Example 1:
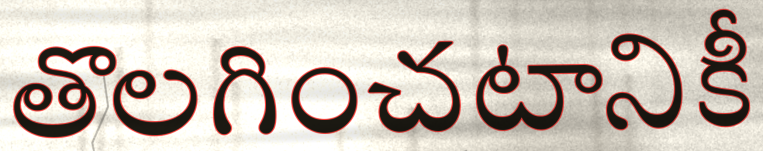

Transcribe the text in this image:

తొలగించటానికీ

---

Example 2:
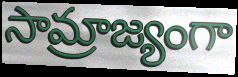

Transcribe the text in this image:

సామ్రాజ్యంగా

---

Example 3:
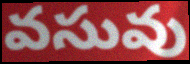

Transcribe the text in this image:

వసువు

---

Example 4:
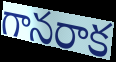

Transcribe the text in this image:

గానరాక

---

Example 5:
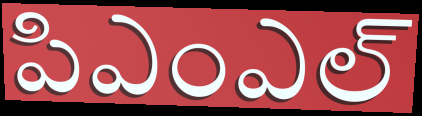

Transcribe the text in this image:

పిఎంఎల్